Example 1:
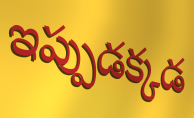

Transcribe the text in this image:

ఇప్పుడక్కడ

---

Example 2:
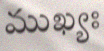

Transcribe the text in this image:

ముఖ్యః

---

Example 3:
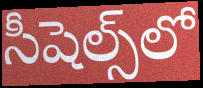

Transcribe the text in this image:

సీషెల్స్‌లో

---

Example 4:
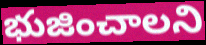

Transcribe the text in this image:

భుజించాలని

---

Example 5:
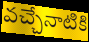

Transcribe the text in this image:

వచ్చేనాటికి